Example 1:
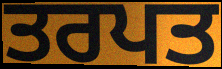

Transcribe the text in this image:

ਤਰਪਤ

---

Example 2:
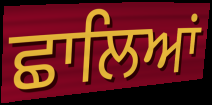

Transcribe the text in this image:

ਛਾਲਿਆਂ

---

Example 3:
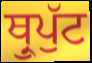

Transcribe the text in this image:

ਥ੍ਰੁਪੁੱਟ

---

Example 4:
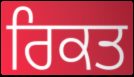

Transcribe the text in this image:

ਰਿਕਤ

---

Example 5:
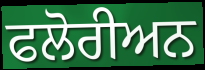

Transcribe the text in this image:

ਫਲੋਰੀਅਨ